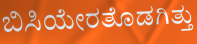
ಬಿಸಿಯೇರತೊಡಗಿತ್ತು